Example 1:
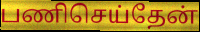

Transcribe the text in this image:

பணிசெய்தேன்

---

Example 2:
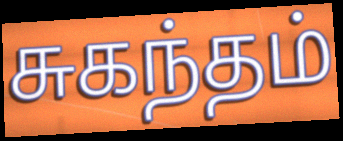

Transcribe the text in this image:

சுகந்தம்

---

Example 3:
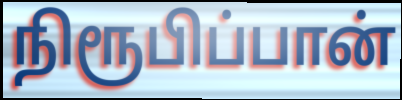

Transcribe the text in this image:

நிரூபிப்பான்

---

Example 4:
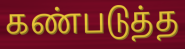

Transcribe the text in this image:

கண்படுத்த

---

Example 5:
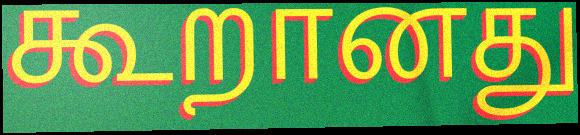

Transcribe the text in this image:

கூறானது